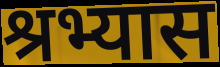
श्रभ्यास